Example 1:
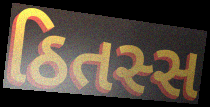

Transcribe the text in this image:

ઠિતસ્સ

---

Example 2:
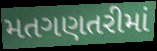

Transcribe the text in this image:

મતગણતરીમાં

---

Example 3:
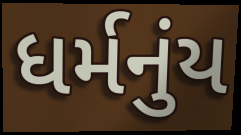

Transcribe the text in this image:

ધર્મનુંય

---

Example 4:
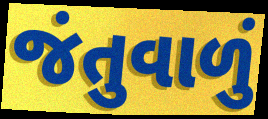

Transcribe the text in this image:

જંતુવાળું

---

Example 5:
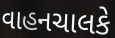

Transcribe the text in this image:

વાહનચાલકે